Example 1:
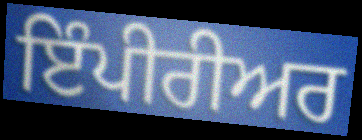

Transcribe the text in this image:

ਇੰਪੀਰੀਅਰ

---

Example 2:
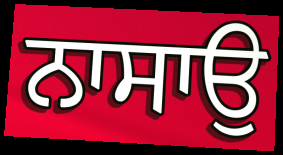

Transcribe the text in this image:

ਨਾਸਾਉ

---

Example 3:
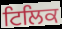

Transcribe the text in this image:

ਟਿਲਿਕ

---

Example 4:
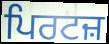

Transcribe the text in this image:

ਪਿਰਟਜ਼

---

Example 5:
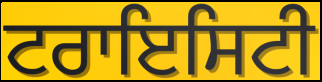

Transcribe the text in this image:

ਟਰਾਇਸਿਟੀ